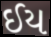
ઈય